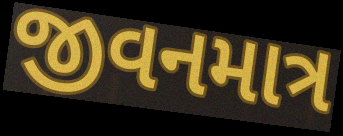
જીવનમાત્ર